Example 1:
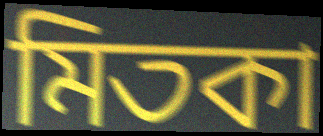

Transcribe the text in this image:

মিতকা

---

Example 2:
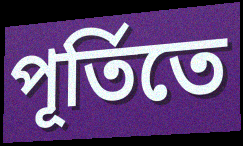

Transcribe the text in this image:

পূর্তিতে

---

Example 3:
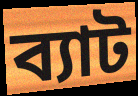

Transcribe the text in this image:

ব্যাট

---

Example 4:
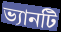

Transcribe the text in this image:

ভ্যানটি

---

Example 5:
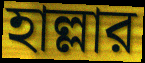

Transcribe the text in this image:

হাল্লার